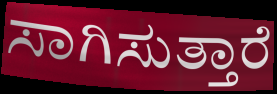
ಸಾಗಿಸುತ್ತಾರೆ